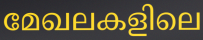
മേഖലകളിലെ